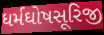
ધર્મઘોષસૂરિજી